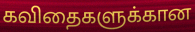
கவிதைகளுக்கான